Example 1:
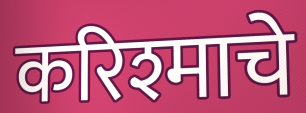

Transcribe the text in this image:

करिश्माचे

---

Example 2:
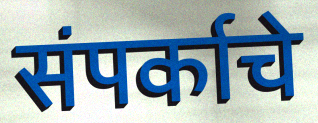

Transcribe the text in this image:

संपर्काचे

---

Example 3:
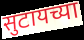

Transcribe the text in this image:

सुटायच्या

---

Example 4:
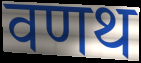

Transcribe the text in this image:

वणथ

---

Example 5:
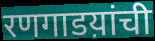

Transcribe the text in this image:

रणगाडय़ांची